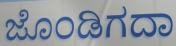
ಜೊಂಡಿಗದಾ